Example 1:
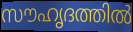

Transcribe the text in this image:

സൗഹൃദത്തിൽ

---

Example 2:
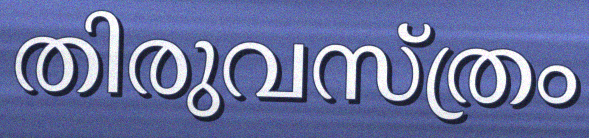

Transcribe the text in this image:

തിരുവസ്ത്രം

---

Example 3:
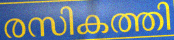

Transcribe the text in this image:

രസികത്തി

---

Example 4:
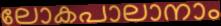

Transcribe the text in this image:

ലോകപാലാനാം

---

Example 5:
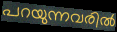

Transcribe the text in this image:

പറയുന്നവരിൽ